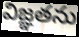
విజ్ఞతను